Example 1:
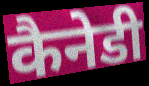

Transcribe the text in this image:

कैनेडी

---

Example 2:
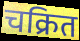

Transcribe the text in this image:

चक्रित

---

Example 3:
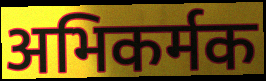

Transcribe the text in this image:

अभिकर्मक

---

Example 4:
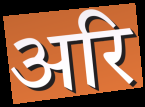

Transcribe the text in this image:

अरि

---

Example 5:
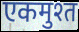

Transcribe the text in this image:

एकमुश्त